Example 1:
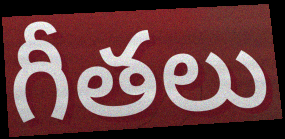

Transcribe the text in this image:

గీతలు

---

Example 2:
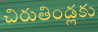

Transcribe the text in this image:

చిరుతిండ్లకు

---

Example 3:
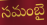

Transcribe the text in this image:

సమంబై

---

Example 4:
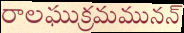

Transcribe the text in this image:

రాలఘుక్రమమునన్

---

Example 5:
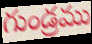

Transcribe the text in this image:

గుండ్రము